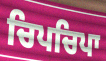
ਚਿਪਚਿਪਾ